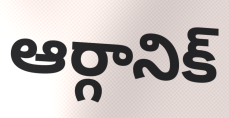
ఆర్గానిక్